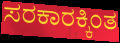
ಸರಕಾರಕ್ಕಿಂತ